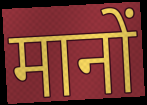
मानों